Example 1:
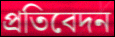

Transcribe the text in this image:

প্ৰতিবেদন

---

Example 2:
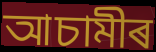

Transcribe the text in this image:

আচামীৰ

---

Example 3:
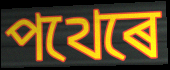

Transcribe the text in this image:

পথেৰে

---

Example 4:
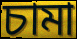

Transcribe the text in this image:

চামা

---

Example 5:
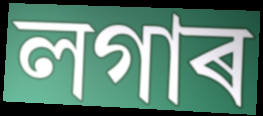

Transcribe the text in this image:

লগাৰ